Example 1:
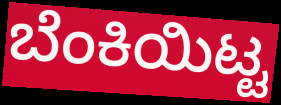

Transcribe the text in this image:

ಬೆಂಕಿಯಿಟ್ಟ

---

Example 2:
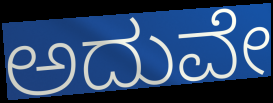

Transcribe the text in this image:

ಅದುವೇ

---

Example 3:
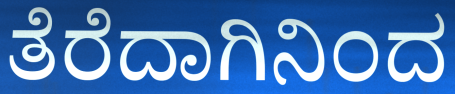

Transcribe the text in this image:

ತೆರೆದಾಗಿನಿಂದ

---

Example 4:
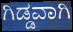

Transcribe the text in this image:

ಗಿಡ್ಡವಾಗಿ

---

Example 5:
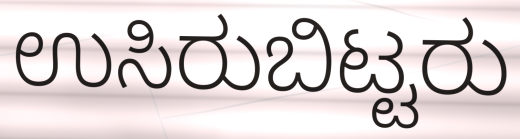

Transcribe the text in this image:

ಉಸಿರುಬಿಟ್ಟರು